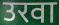
उरवा